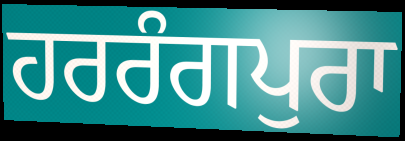
ਹਰਰੰਗਪੁਰਾ